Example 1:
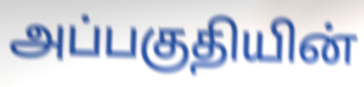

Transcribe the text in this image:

அப்பகுதியின்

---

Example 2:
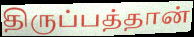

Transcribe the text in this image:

திருப்பத்தான்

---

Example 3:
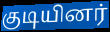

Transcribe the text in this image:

குடியினர்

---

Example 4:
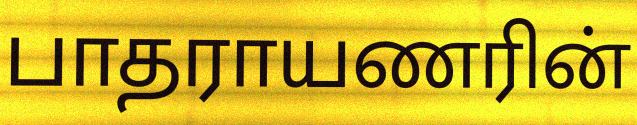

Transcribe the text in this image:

பாதராயணரின்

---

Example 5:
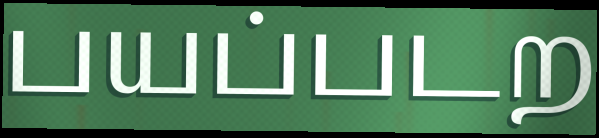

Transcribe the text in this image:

பயப்படற